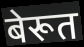
बेरूत